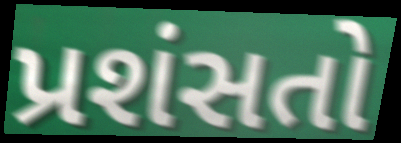
પ્રશંસતો